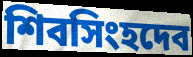
শিবসিংহদেব